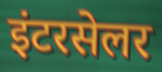
इंटरसेलर